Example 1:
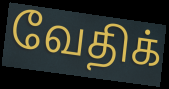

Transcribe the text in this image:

வேதிக்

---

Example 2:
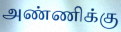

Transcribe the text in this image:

அண்ணிக்கு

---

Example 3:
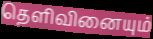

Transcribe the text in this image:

தெளிவினையும்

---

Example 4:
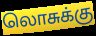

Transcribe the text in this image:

லொசுக்கு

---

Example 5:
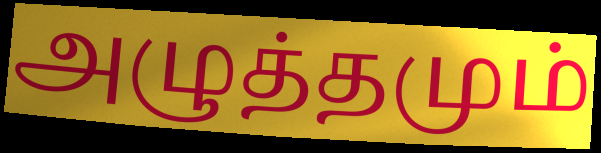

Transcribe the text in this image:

அழுத்தமும்